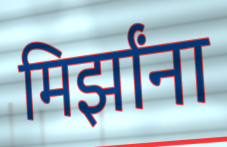
मिर्झांना